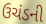
ઉચંડની